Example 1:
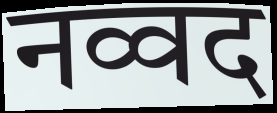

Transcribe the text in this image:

नव्वद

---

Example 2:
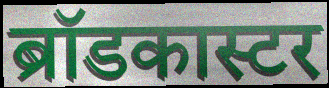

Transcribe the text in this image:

ब्रॉडकास्टर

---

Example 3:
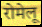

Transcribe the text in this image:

रोमेलू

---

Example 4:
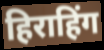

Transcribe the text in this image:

हिराहिंग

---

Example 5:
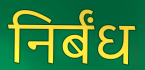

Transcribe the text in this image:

निर्बंध